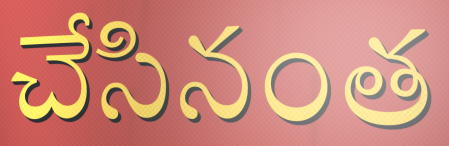
చేసినంత